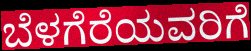
ಬೆಳಗೆರೆಯವರಿಗೆ